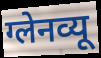
ग्लेनव्यू